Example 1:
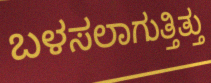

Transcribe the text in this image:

ಬಳಸಲಾಗುತ್ತಿತ್ತು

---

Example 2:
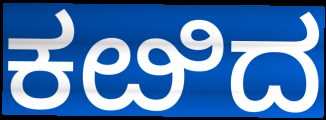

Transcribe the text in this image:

ಕೞಿದ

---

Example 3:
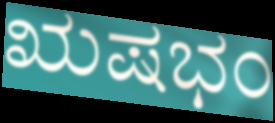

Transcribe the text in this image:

ಋಷಭಂ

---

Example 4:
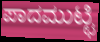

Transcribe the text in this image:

ಪಾದಮುಟ್ಟಿ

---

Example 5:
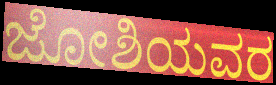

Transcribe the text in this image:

ಜೋಶಿಯವರ